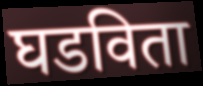
घडविता